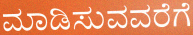
ಮಾಡಿಸುವವರೆಗೆ